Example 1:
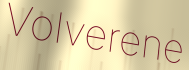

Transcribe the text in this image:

Volverene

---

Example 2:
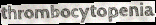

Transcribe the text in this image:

thrombocytopenia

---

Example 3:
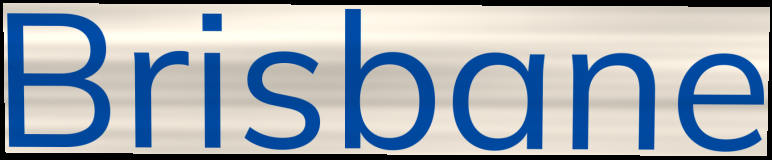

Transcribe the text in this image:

Brisbane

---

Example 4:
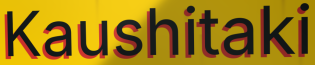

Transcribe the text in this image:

Kaushitaki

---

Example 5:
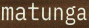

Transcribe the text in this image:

matunga